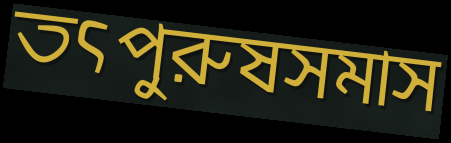
তৎপুরুষসমাস